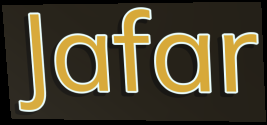
Jafar